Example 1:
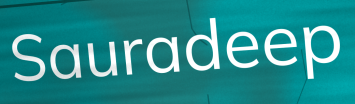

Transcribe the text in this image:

Sauradeep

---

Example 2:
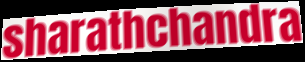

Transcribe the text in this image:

sharathchandra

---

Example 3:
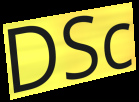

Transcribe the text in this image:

DSc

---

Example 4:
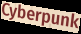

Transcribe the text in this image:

Cyberpunk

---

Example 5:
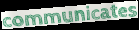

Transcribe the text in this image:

communicates